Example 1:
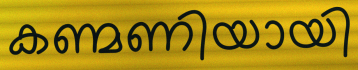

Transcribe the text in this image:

കണ്മണിയായി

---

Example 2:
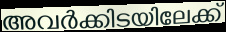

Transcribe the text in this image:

അവർക്കിടയിലേക്ക്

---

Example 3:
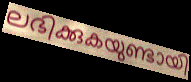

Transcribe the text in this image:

ലഭിക്കുകയുണ്ടായി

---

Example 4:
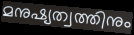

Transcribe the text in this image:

മനുഷ്യത്വത്തിനും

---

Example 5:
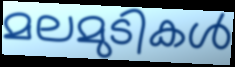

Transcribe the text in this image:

മലമുടികൾ